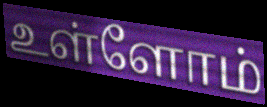
உள்ளோம்